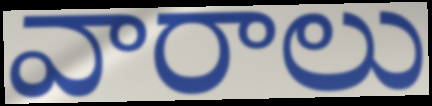
వారాలు